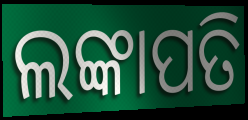
ଲଙ୍କାପତି